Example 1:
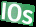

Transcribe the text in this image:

IOs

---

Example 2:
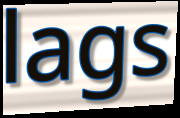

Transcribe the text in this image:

lags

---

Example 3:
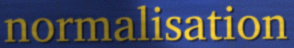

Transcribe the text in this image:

normalisation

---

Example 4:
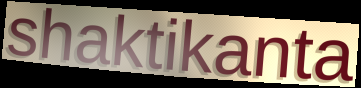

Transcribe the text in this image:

shaktikanta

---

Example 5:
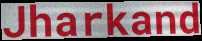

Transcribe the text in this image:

Jharkand